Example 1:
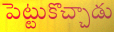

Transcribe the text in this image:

పెట్టుకొచ్చాడు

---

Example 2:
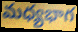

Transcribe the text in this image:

మధ్యభాగ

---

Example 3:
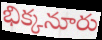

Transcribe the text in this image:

భిక్కనూరు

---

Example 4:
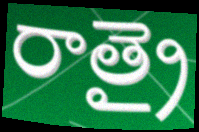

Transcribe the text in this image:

రాత్రై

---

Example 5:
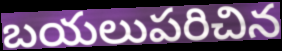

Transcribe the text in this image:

బయలుపరిచిన